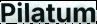
Pilatum